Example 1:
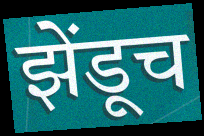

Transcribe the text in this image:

झेंडूच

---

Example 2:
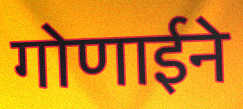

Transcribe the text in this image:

गोणाईने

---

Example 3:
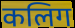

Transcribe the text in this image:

कलिग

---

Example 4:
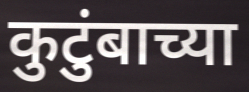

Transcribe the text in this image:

कुटुंबाच्या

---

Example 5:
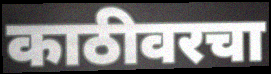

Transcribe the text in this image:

काठीवरचा